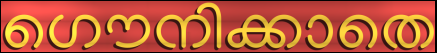
ഗൌനിക്കാതെ